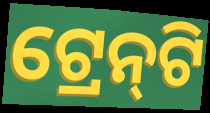
ଟ୍ରେନ୍‌ଟି